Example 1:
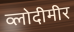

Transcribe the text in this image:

व्लोदीमीर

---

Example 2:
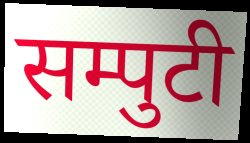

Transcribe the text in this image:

सम्पुटी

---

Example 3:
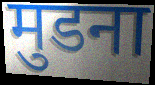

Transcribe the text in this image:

मुडना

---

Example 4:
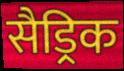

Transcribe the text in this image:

सैड्रिक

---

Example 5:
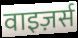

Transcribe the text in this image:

वाइज़र्स